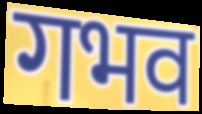
गभव